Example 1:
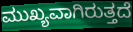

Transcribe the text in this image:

ಮುಖ್ಯವಾಗಿರುತ್ತದೆ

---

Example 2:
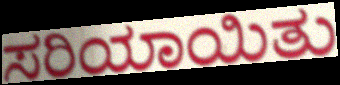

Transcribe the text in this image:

ಸರಿಯಾಯಿತು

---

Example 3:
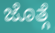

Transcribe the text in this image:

ಜೊತ್ಗೆ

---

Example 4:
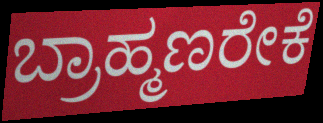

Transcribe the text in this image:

ಬ್ರಾಹ್ಮಣರೇಕೆ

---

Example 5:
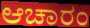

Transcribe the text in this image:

ಆಚಾರಂ